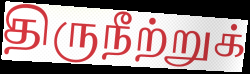
திருநீற்றுக்